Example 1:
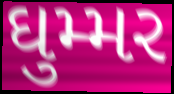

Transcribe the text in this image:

ઘુમ્મર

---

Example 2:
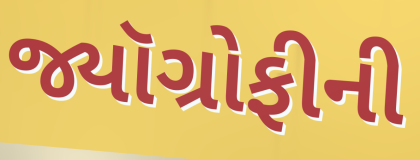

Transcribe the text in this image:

જ્યૉગ્રોફીની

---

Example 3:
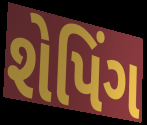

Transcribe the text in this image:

શેપિંગ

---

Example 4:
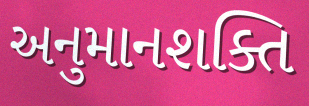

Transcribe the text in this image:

અનુમાનશક્તિ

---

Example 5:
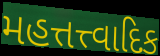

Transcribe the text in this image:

મહત્તત્ત્વાદિક